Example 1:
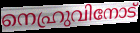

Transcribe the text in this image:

നെഹ്രുവിനോട്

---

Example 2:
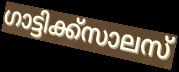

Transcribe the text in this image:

ഗാട്ടിക്ക്സാലസ്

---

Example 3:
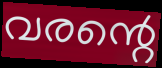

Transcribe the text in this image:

വരന്റെ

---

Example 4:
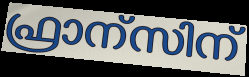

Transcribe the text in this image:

ഫ്രാന്സിന്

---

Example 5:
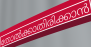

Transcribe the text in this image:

തോൽക്കാതിരിക്കാൻ